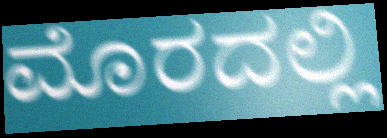
ಮೊರದಲ್ಲಿ